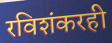
रविशंकरही